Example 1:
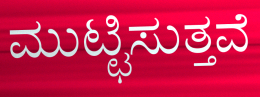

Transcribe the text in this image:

ಮುಟ್ಟಿಸುತ್ತವೆ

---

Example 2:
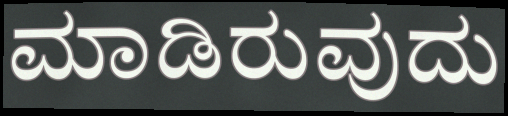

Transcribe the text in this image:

ಮಾಡಿರುವುದು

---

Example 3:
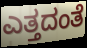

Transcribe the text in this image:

ಎತ್ತದಂತೆ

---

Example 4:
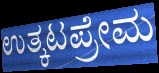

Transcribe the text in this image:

ಉತ್ಕಟಪ್ರೇಮ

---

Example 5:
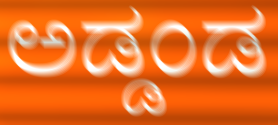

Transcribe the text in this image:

ಅಡ್ಡಂಡ